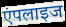
एंपलाइज